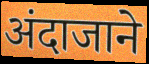
अंदाजाने